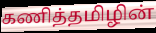
கணித்தமிழின்